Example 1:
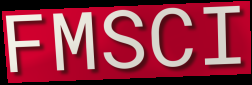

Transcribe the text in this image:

FMSCI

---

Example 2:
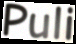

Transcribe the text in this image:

Puli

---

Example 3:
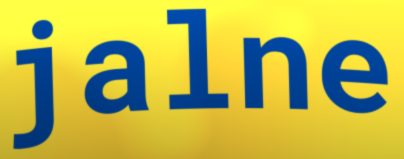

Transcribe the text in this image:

jalne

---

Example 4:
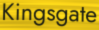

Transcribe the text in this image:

Kingsgate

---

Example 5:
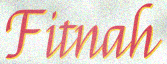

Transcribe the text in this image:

Fitnah